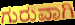
ಗುರುವಾಗಿ